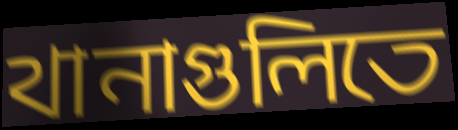
থানাগুলিতে